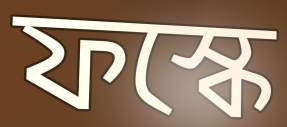
ফস্কে